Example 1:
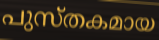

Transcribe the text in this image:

പുസ്തകമായ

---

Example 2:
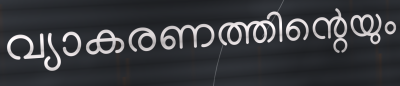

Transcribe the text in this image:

വ്യാകരണത്തിന്റെയും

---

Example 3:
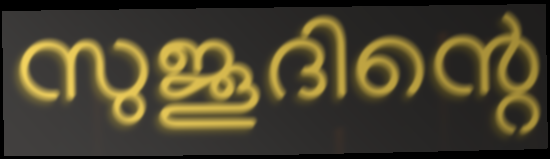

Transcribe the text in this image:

സുജൂദിന്റെ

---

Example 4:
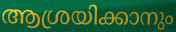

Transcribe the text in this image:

ആശ്രയിക്കാനും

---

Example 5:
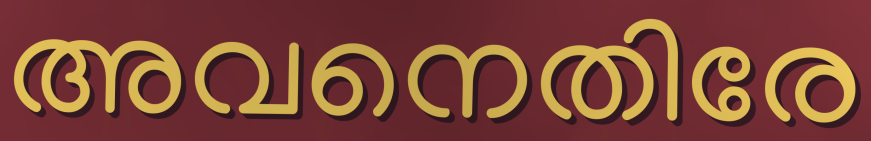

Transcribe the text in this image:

അവനെതിരേ